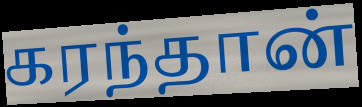
கரந்தான்